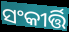
ସଂକୀର୍ତ୍ତି